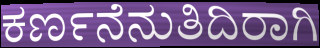
ಕರ್ಣನೆನುತಿದಿರಾಗಿ